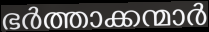
ഭർത്താക്കന്മാർ